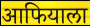
आफियाला